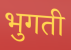
भुगती